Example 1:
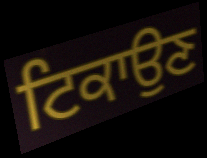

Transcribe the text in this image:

ਟਿਕਾਉਣ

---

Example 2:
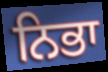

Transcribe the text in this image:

ਨਿਭਾ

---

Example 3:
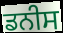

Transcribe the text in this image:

ਡਨੀਸ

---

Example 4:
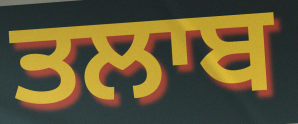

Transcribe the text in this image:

ਤਲਾਬ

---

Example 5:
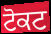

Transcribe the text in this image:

ਟੋਕਟ